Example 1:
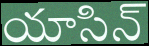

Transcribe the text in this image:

యాసిన్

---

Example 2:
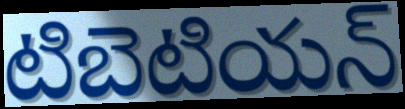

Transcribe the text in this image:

టిబెటియన్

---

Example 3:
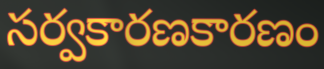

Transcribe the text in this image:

సర్వకారణకారణం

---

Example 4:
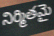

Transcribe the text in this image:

నిర్మితమై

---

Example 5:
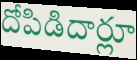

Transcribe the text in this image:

దోపిడిదార్లూ